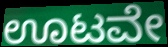
ಊಟವೇ